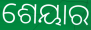
ଶେୟାର